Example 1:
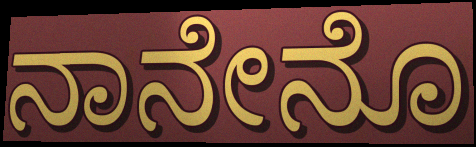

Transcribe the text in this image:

ನಾನೇನೊ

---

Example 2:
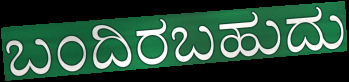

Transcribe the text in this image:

ಬಂದಿರಬಹುದು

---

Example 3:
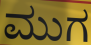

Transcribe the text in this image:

ಮುಗ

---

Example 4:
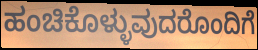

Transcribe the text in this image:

ಹಂಚಿಕೊಳ್ಳುವುದರೊಂದಿಗೆ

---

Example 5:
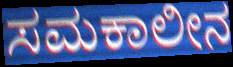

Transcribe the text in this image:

ಸಮಕಾಲೀನ